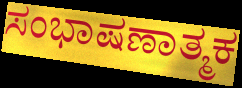
ಸಂಭಾಷಣಾತ್ಮಕ